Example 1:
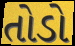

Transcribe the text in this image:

તોડો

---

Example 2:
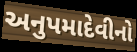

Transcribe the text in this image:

અનુપમાદેવીનો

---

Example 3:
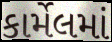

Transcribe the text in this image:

કાર્મેલમાં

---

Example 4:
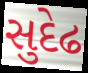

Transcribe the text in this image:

સુદેઢ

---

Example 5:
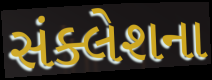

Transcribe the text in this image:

સંક્લેશના